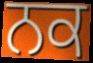
ਨਕ